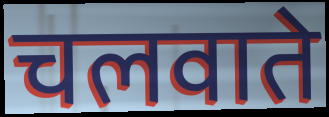
चलवाते